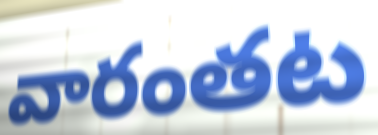
వారంతట